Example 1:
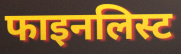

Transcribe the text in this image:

फाइनलिस्ट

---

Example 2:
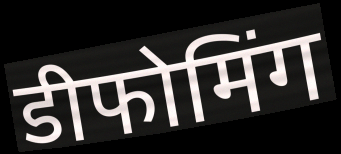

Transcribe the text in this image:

डीफोमिंग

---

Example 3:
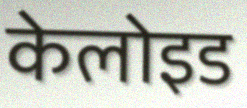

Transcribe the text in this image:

केलोइड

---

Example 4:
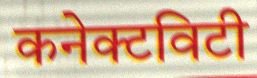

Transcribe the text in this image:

कनेक्टविटी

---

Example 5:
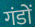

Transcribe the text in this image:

गंडों